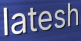
latesh